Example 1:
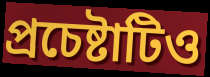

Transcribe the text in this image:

প্রচেষ্টাটিও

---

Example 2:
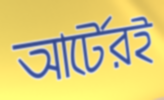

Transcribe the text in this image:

আর্টেরই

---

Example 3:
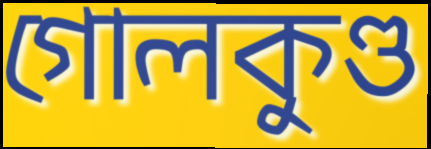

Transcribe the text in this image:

গোলকুণ্ড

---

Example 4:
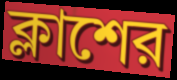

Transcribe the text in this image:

ক্লাশের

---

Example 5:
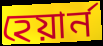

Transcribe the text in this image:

হেয়ার্ন